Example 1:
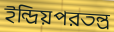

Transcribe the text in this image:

ইন্দ্রিয়পরতন্ত্র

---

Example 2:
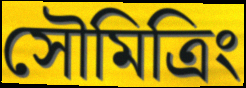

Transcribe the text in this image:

সৌমিত্রিং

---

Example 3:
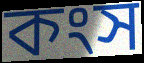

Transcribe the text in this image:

কংস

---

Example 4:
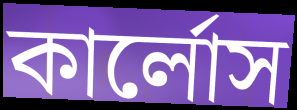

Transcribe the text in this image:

কার্লোস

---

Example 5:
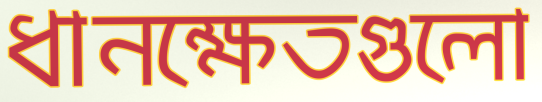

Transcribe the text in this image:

ধানক্ষেতগুলো